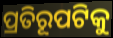
ପ୍ରତିରୂପଟିକୁ